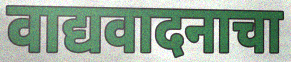
वाद्यवादनाचा